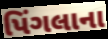
પિંગલાના